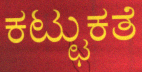
ಕಟ್ಟುಕತೆ